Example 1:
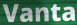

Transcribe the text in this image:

Vanta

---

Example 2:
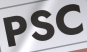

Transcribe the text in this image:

PSC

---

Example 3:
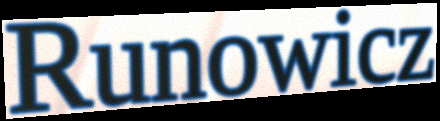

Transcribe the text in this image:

Runowicz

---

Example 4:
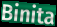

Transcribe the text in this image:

Binita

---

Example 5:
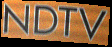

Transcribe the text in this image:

NDTV